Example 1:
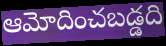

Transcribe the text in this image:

ఆమోదించబడ్డది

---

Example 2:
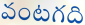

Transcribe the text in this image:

వంటగది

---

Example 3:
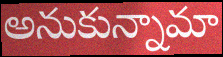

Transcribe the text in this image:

అనుకున్నామా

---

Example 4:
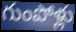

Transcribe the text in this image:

గుంపోళ్లు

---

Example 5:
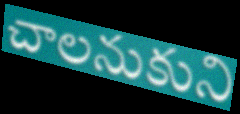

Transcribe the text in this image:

చాలనుకుని